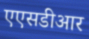
एएसडीआर